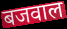
बजवाल